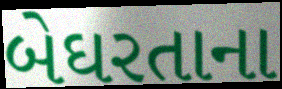
બેઘરતાના